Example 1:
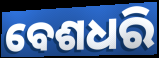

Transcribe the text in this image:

ବେଶଧରି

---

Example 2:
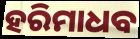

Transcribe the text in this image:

ହରିମାଧବ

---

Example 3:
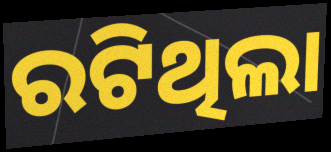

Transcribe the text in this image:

ରଟିଥିଲା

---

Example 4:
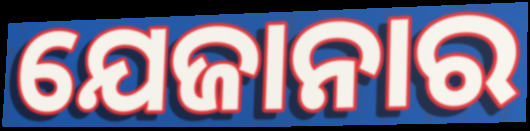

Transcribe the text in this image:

ଯେଜାନାର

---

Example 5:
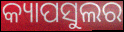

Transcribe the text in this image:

କ୍ୟାପସୁଲର